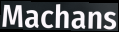
Machans